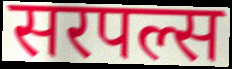
सरपल्स